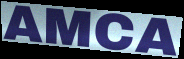
AMCA